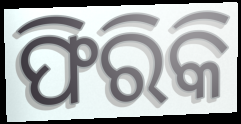
ଫିରିକି